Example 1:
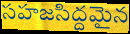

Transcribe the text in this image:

సహజసిద్దమైన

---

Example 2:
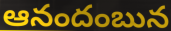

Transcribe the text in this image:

ఆనందంబున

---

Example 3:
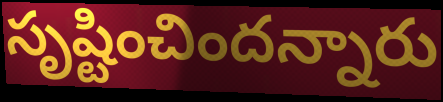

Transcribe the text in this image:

సృష్టించిందన్నారు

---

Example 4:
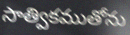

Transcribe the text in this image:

సాత్వికముతోను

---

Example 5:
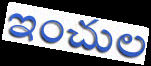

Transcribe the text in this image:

ఇంచుల